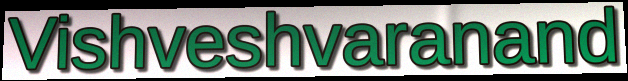
Vishveshvaranand